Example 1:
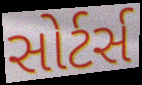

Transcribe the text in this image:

સોર્ટર્સ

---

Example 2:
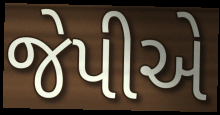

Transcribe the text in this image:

જેપીએ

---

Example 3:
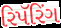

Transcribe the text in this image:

રિપૅરિંગ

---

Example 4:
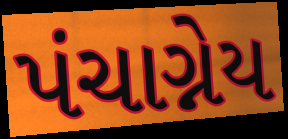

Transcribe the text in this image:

પંચાગ્નેય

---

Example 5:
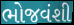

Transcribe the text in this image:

ભોજવંશી